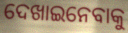
ଦେଖାଇନେବାକୁ